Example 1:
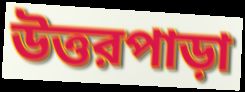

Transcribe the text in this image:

উত্তরপাড়া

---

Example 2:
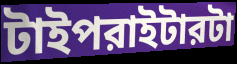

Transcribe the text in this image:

টাইপরাইটারটা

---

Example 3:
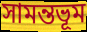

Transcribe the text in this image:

সামন্তভূম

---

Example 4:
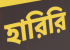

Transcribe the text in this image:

হারিরি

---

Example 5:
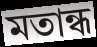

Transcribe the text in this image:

মতান্ধ